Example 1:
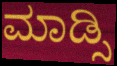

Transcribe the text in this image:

ಮಾಡ್ಸಿ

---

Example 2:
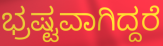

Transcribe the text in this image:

ಭ್ರಷ್ಟವಾಗಿದ್ದರೆ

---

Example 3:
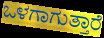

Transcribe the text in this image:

ಒಳಗಾಗುತ್ತಾರೆ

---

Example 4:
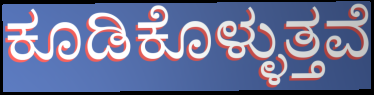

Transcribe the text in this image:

ಕೂಡಿಕೊಳ್ಳುತ್ತವೆ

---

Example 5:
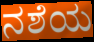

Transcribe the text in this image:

ನಶೆಯ